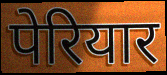
पेरियार